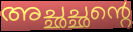
അച്ഛച്ഛന്റെ